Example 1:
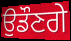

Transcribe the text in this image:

ਉਡੌਣਗੇ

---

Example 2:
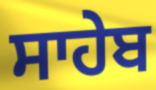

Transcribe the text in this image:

ਸਾਹੇਬ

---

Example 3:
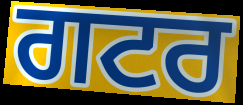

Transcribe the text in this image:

ਗਟਰ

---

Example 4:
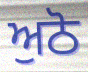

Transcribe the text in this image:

ਅੁਠੋ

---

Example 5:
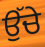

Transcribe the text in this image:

ਉੱਚੇ